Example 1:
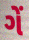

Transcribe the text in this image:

ગેં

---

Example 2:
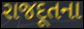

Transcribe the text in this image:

રાજદૂતના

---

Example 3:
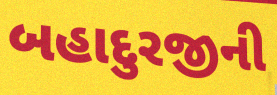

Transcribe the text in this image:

બહાદુરજીની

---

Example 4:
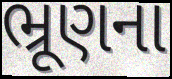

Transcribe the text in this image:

ભ્રૂણના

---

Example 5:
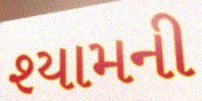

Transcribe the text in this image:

શ્યામની